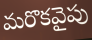
మరొకవైపు